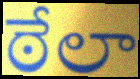
ఠేలా